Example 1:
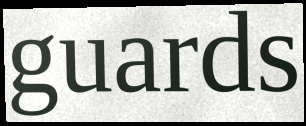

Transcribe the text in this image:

guards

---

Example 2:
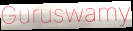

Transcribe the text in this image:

Guruswamy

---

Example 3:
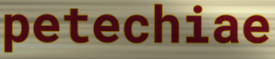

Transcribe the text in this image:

petechiae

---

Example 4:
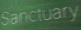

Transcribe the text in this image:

Sanctuary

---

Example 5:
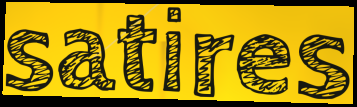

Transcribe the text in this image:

satires